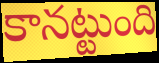
కానట్టుంది